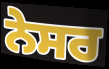
ਨੇਸਰ